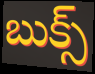
బుక్స్